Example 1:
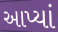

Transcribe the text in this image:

આપ્યાં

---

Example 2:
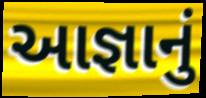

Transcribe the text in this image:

આજ્ઞાનું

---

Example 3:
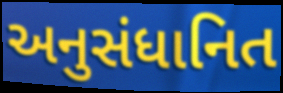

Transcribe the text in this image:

અનુસંધાનિત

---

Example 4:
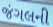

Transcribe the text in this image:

જંગલની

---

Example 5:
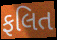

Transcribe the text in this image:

ફલિત